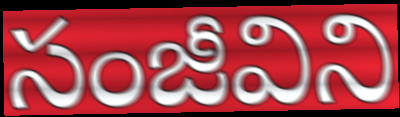
సంజీవిని